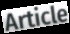
Article